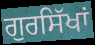
ਗੁਰਸਿੱਖਾਂ